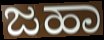
ಜಹಾ